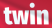
twin